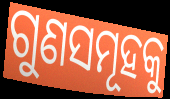
ଗୁଣସମୂହକୁ